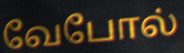
வேபோல்